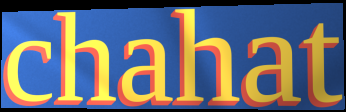
chahat